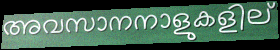
അവസാനനാളുകളില്